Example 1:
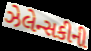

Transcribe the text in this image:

ઝેલેન્સકીની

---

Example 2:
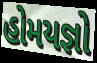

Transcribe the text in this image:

હોમયજ્ઞો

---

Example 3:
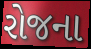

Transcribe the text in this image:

રોજના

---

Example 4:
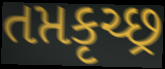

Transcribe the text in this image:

તપ્તકૃચ્છ્ર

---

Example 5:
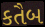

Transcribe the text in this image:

કતૈબ